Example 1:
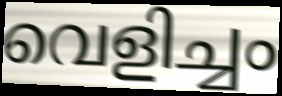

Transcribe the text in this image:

വെളിച്ചം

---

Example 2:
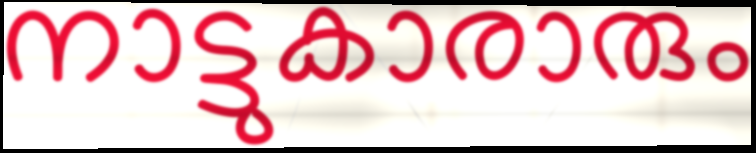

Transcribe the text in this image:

നാട്ടുകാരാരും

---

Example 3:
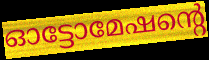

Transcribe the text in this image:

ഓട്ടോമേഷന്റെ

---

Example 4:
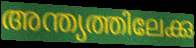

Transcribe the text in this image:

അന്ത്യത്തിലേക്കു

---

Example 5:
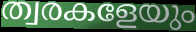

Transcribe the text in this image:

ത്വരകളേയും